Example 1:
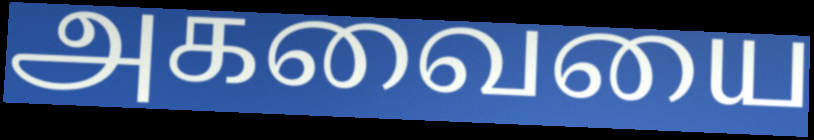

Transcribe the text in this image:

அகவையை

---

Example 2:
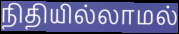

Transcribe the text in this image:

நிதியில்லாமல்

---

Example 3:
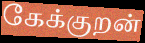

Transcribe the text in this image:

கேக்குறன்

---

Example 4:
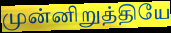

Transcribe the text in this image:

முன்னிறுத்தியே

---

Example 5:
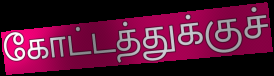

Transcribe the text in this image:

கோட்டத்துக்குச்